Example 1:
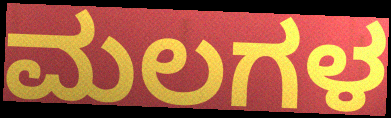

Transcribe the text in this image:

ಮಲಗಳ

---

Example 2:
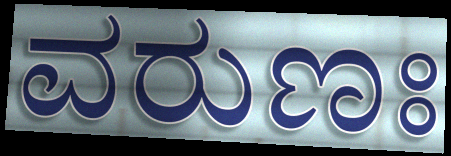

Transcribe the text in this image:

ವರುಣಃ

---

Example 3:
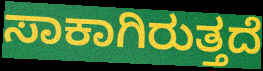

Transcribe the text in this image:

ಸಾಕಾಗಿರುತ್ತದೆ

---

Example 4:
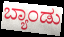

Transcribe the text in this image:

ಬ್ಯಾಂಡು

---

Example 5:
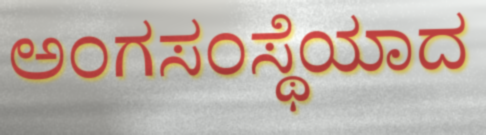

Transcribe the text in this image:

ಅಂಗಸಂಸ್ಥೆಯಾದ